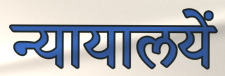
न्यायालयें